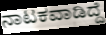
ನಾಟಕವಾಡಿದ್ದೆ